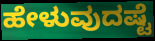
ಹೇಳುವುದಷ್ಟೆ